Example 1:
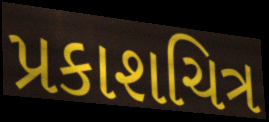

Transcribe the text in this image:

પ્રકાશચિત્ર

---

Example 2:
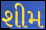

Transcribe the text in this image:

શીમ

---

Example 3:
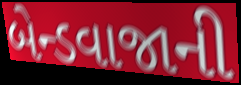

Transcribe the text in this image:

બેન્ડવાજાની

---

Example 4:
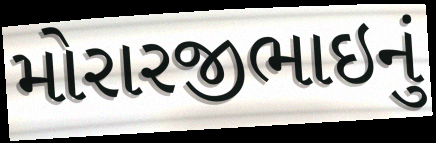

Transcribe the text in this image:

મોરારજીભાઇનું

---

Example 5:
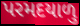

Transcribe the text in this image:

પરમદયાળુ